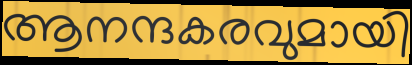
ആനന്ദകരവുമായി